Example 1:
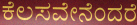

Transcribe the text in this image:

ಕೆಲಸವೇನೆಂದರೆ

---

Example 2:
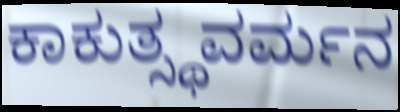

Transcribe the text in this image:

ಕಾಕುತ್ಸ್ಥವರ್ಮನ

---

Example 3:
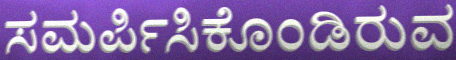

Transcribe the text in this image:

ಸಮರ್ಪಿಸಿಕೊಂಡಿರುವ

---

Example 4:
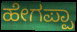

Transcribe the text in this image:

ಹೇಗಪ್ಪಾ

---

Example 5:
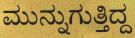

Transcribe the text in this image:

ಮುನ್ನುಗುತ್ತಿದ್ದ